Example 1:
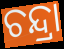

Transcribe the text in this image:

ଚନ୍ଦ୍ରା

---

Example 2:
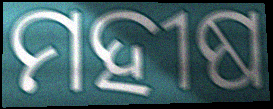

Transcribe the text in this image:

ମହୀଷ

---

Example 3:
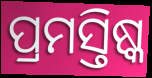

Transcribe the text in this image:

ପ୍ରମସ୍ତିଷ୍କ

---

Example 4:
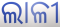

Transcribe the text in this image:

ଲାଳୀ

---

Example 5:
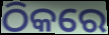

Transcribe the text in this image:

ଠିକରେ